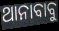
ଥାନାବାବୁ